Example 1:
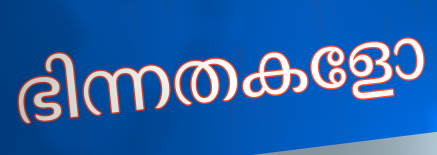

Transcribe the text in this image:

ഭിന്നതകളോ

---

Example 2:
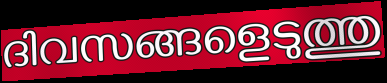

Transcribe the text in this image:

ദിവസങ്ങളെടുത്തു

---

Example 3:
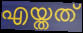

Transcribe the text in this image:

എയ്തത്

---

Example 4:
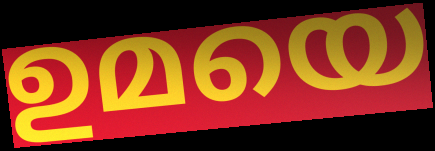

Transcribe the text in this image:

ഉമയെ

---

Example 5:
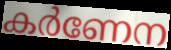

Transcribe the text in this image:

കർണേന